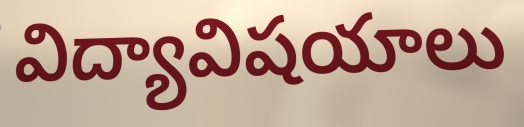
విద్యావిషయాలు